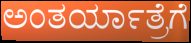
ಅಂತರ್ಯಾತ್ರೆಗೆ